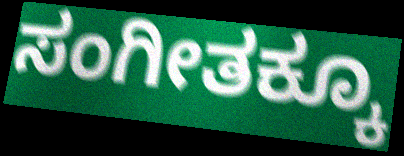
ಸಂಗೀತಕ್ಕೂ